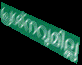
പ്രശ്‌നവുമില്ല